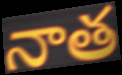
నాత